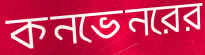
কনভেনরের